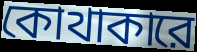
কোথাকারে